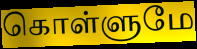
கொள்ளுமே